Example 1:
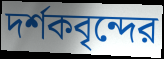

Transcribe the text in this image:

দর্শকবৃন্দের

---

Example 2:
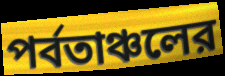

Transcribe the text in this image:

পর্বতাঞ্চলের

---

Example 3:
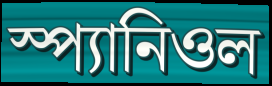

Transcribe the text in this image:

স্প্যানিওল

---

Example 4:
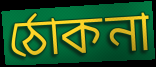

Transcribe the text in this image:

ঠোকনা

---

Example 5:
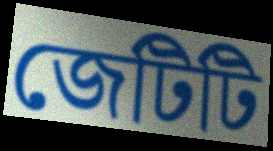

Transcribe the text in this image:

জেটিটি